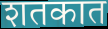
शतकात